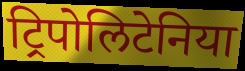
ट्रिपोलिटेनिया